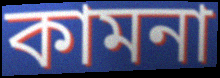
কামনা